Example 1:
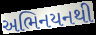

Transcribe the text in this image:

અભિનયનથી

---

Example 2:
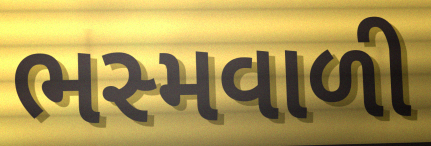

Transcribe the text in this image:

ભસ્મવાળી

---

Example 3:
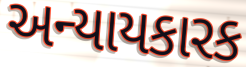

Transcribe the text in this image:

અન્યાયકારક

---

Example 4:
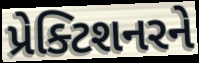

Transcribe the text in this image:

પ્રેક્ટિશનરને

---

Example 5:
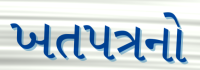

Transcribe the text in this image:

ખતપત્રનો